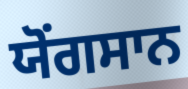
ਯੋਂਗਸਾਨ